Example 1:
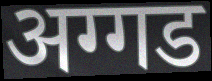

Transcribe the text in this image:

अग्गड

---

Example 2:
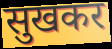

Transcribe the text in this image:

सुखकर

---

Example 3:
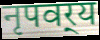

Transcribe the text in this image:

नृपवर्य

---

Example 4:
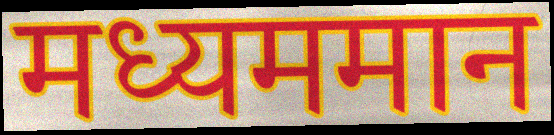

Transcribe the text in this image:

मध्यममान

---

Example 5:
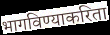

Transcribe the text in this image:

भागविण्याकरिता